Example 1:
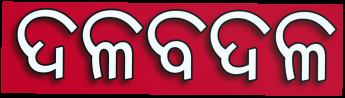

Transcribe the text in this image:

ଦଳବଦଳ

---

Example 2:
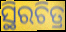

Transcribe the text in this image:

ସ୍ଥିରଚିତ୍ର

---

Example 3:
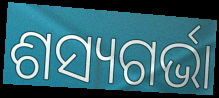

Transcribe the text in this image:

ଶସ୍ୟଗର୍ଭା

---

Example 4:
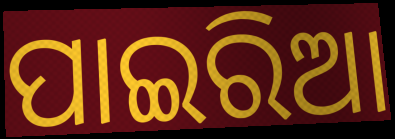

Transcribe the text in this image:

ପାଇରିଆ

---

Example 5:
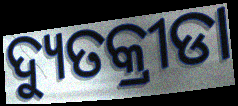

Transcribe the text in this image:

ଦ୍ୟୁତକ୍ରୀଡା